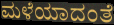
ಮಳೆಯಾದಂತೆ